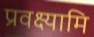
प्रवक्ष्यामि